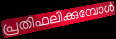
പ്രതിഫലിക്കുമ്പോൾ